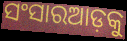
ସଂସାରଆଡ଼କୁ